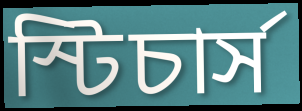
স্টিচার্স